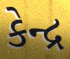
કેન્દ્ર